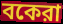
বকেরা